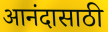
आनंदासाठी